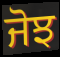
ਜੋਝ